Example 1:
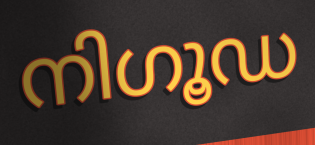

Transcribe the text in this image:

നിഗൂഡ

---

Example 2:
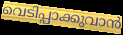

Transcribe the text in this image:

വെടിപ്പാക്കുവാൻ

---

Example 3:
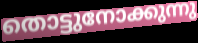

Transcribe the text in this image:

തൊട്ടുനോക്കുന്നു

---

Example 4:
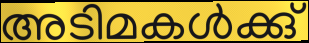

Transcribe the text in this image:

അടിമകൾക്കു്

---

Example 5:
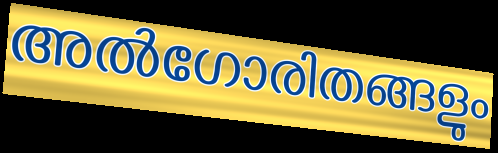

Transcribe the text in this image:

അൽഗോരിതങ്ങളും